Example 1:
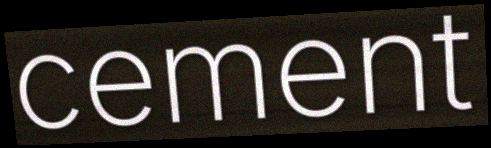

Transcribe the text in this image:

cement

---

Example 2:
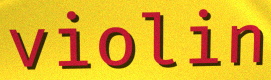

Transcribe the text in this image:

violin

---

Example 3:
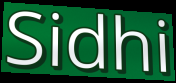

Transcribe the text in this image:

Sidhi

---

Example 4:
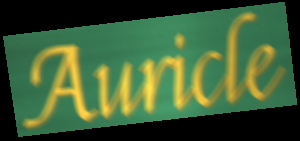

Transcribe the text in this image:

Auricle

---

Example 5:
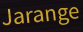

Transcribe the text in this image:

Jarange